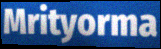
Mrityorma